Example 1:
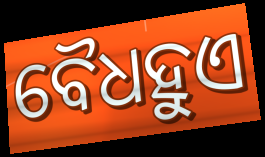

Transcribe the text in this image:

ବୈଧହୁଏ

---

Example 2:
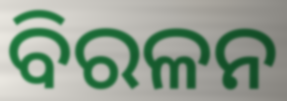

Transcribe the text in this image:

ବିରଳନ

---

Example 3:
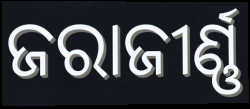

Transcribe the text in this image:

ଜରାଜୀର୍ଣ୍ଣ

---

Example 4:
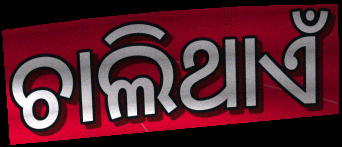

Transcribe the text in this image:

ଚାଲିଥାଏଁ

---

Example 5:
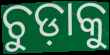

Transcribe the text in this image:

ଚୁଡ଼ାକୁ